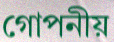
গোপনীয়